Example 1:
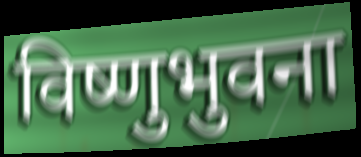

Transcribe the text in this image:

विष्णुभुवना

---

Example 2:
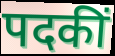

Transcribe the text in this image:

पदकीं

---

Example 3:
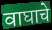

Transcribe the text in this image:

वाघाचे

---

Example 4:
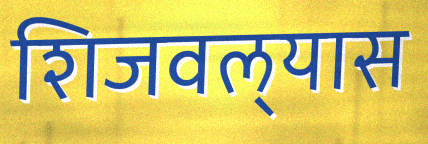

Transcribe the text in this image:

शिजवल्यास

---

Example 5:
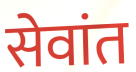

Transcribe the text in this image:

सेवांत